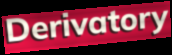
Derivatory